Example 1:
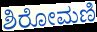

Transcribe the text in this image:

ಶಿರೋಮಣಿ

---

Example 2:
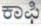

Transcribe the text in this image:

ಕಾಫಿ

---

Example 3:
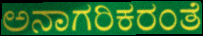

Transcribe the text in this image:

ಅನಾಗರಿಕರಂತೆ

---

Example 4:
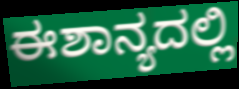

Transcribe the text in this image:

ಈಶಾನ್ಯದಲ್ಲಿ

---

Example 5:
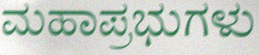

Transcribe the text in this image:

ಮಹಾಪ್ರಭುಗಳು